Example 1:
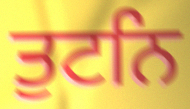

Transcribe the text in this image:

ਤੁਟਨਿ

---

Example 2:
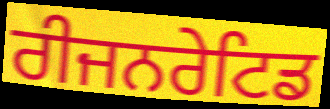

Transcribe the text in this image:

ਰੀਜਨਰੇਟਿਡ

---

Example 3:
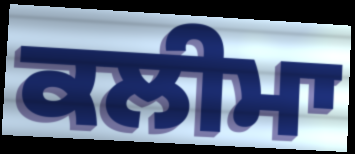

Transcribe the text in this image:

ਕਲੀਮਾ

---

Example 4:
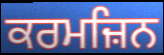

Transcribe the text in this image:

ਕਰਮਜ਼ਿਨ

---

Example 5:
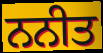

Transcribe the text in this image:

ਨਨੀਤ